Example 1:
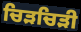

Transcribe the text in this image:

ਚਿੜਚਿੜੀ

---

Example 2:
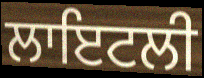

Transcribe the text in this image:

ਲਾਇਟਲੀ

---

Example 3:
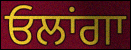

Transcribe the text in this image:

ਓਲਾਂਗਾ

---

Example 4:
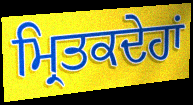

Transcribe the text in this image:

ਮ੍ਰਿਤਕਦੇਹਾਂ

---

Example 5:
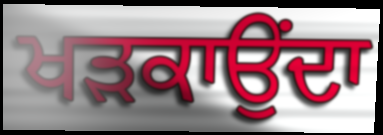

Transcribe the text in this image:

ਖੜਕਾਉਂਦਾ